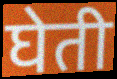
घेती